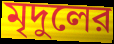
মৃদুলের